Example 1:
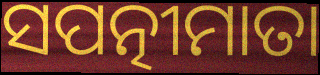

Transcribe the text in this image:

ସପତ୍ନୀମାତା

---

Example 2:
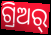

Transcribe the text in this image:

ଗ୍ରିଅର୍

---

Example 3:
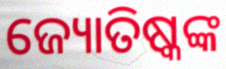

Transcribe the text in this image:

ଜ୍ୟୋତିଷ୍କଙ୍କ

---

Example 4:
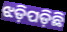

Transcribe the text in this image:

ଝଡ଼ିପଡ଼ିଛି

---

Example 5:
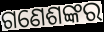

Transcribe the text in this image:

ଗଣେଶଙ୍କର